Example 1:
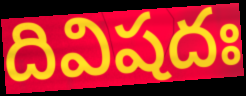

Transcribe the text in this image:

దివిషదః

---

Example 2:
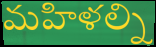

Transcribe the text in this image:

మహిళల్ని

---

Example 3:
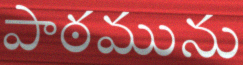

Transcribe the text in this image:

పాఠమును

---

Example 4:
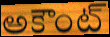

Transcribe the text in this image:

అకౌంట్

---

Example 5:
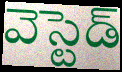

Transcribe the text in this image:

వెస్టెడ్